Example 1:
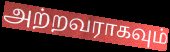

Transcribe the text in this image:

அற்றவராகவும்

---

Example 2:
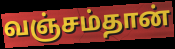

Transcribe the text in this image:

வஞ்சம்தான்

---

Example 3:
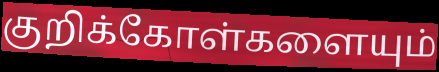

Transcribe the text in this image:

குறிக்கோள்களையும்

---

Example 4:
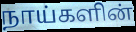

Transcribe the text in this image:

நாய்களின்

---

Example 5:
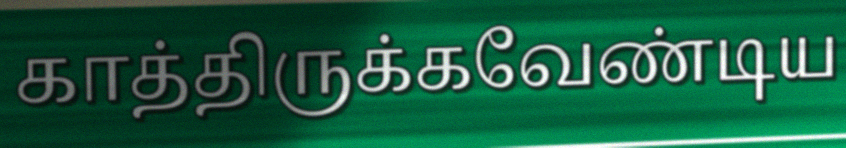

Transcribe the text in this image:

காத்திருக்கவேண்டிய